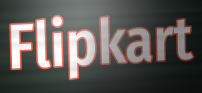
Flipkart